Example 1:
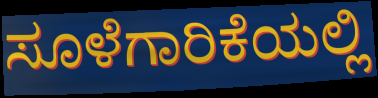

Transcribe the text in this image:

ಸೂಳೆಗಾರಿಕೆಯಲ್ಲಿ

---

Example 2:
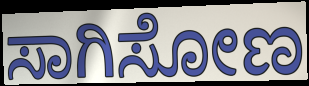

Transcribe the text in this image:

ಸಾಗಿಸೋಣ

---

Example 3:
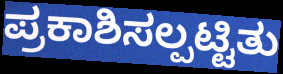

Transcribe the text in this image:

ಪ್ರಕಾಶಿಸಲ್ಪಟ್ಟಿತು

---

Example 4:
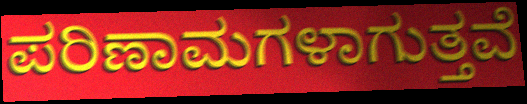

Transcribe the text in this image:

ಪರಿಣಾಮಗಳಾಗುತ್ತವೆ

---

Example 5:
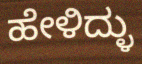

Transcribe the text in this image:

ಹೇಳಿದ್ಳು